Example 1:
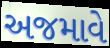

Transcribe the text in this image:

અજમાવે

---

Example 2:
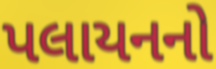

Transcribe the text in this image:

પલાયનનો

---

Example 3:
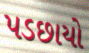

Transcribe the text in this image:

પડછાયો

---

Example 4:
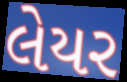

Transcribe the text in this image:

લેયર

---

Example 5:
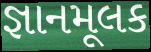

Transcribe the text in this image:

જ્ઞાનમૂલક